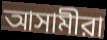
আসামীরা